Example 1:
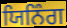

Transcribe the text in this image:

ਯਿਨਿੰਗ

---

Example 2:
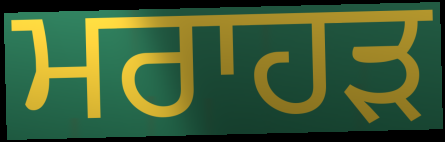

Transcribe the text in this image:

ਮਰਾਹੜ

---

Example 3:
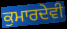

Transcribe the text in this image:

ਕੁਮਾਰਦੇਵੀ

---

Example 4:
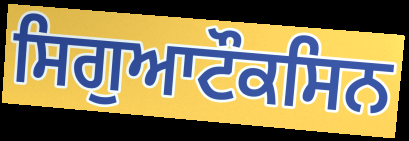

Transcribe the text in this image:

ਸਿਗੁਆਟੌਕਸਿਨ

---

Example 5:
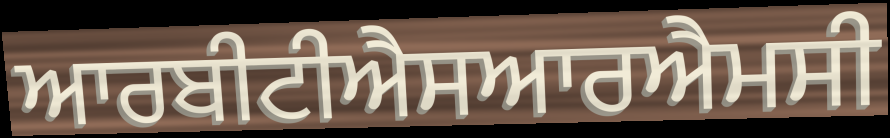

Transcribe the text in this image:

ਆਰਬੀਟੀਐਸਆਰਐਮਸੀ